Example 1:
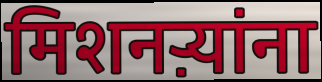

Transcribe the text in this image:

मिशनऱ्‍यांना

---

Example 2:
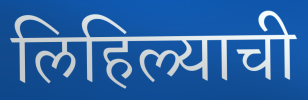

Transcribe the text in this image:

लिहिल्याची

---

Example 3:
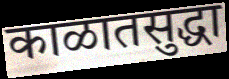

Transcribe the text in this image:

काळातसुद्धा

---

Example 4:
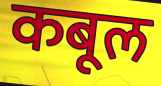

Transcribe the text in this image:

कबूल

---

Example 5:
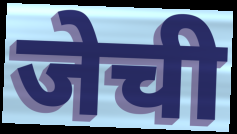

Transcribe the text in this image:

जेची